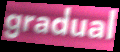
gradual